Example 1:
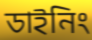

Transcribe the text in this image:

ডাইনিং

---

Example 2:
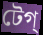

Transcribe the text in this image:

টেগ্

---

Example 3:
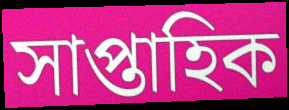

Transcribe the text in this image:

সাপ্তাহিক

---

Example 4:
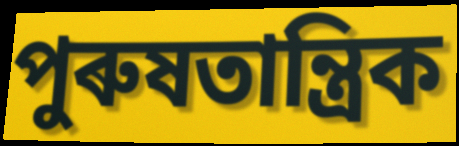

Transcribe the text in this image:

পুৰুষতান্ত্ৰিক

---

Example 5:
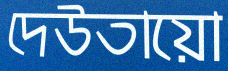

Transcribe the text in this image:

দেউতায়ো